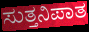
ಸುತ್ತನಿಪಾತ